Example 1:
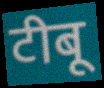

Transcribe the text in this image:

टीबू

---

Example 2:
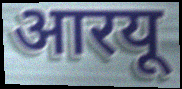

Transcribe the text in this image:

आरयू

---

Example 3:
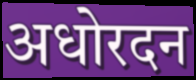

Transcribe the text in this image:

अधोरदन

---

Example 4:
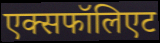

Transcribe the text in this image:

एक्सफॉलिएट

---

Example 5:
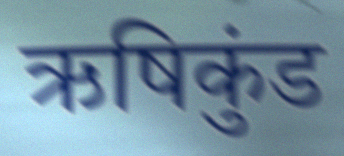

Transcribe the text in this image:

ऋषिकुंड